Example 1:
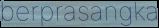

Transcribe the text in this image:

berprasangka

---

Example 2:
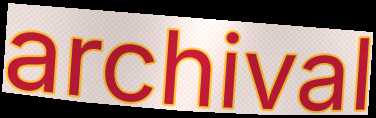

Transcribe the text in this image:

archival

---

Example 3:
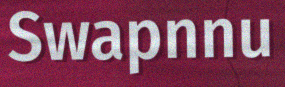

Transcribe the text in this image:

Swapnnu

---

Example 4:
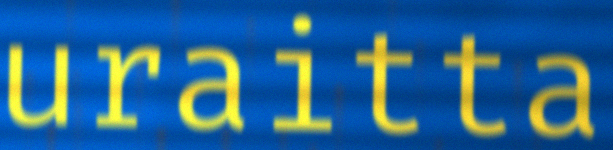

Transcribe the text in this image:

uraitta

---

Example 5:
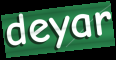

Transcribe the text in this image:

deyar